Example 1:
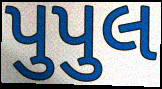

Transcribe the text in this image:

પુપુલ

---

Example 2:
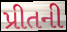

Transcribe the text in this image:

પ્રીતની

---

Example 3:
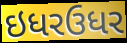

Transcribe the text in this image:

ઇધરઉધર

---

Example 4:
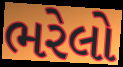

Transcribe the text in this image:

ભરેલો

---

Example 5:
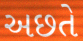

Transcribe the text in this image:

અછતે